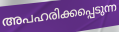
അപഹരിക്കപ്പെടുന്ന